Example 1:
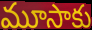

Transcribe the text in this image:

మూసాకు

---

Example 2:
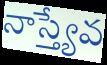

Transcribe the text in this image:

నాస్త్యేవ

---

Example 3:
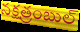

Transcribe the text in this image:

నక్షత్రంబుల్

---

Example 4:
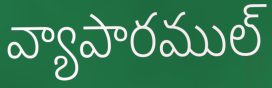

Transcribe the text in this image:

వ్యాపారముల్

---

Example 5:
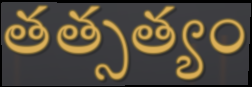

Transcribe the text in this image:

తత్సత్యం